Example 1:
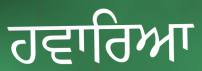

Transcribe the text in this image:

ਹਵਾਰਿਆ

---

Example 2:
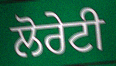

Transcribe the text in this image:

ਲੋਰੇਟੀ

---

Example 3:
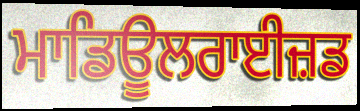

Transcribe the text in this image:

ਮਾਡਿਊਲਰਾਈਜ਼ਡ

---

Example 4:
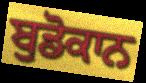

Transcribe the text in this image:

ਬੁਡੋਕਾਨ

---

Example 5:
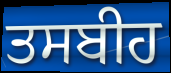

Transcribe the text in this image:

ਤਸਬੀਹ